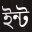
ইন্ট